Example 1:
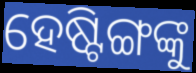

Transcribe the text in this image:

ହେଷ୍ଟିଙ୍ଗଙ୍କୁ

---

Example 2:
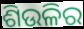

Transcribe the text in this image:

ଶିଉଳିର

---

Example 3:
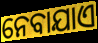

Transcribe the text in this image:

ନେବାଯାଏ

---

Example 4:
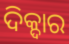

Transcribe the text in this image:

ଦିକ୍ଦାର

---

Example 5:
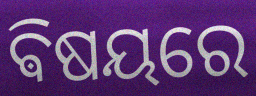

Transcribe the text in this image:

ଵିଷୟରେ